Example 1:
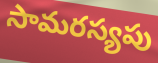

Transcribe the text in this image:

సామరస్యపు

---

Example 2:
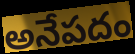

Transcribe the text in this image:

అనేపదం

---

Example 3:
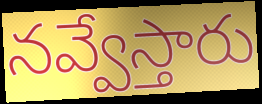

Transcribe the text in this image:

నవ్వేస్తారు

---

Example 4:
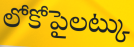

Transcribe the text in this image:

లోకోపైలట్కు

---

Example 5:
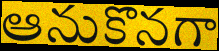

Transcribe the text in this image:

ఆనుకొనగా